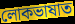
লোকভাষাত